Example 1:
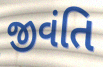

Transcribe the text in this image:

જીવંતિ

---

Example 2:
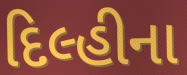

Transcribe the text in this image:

દિલ્હીના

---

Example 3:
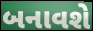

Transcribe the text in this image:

બનાવશે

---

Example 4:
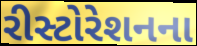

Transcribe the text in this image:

રીસ્ટોરેશનના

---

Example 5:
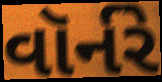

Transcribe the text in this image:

વૉર્નરે